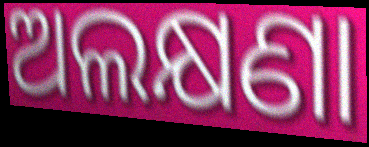
ଅଲକ୍ଷଣା